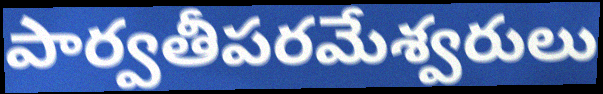
పార్వతీపరమేశ్వరులు